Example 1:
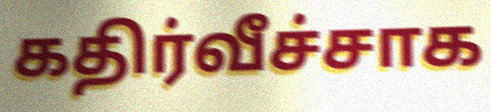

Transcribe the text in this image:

கதிர்வீச்சாக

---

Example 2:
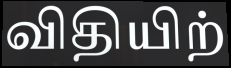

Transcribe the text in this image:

விதியிற்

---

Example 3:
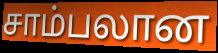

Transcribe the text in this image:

சாம்பலான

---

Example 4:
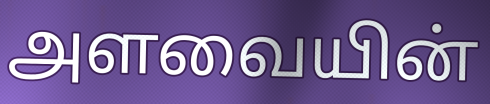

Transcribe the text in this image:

அளவையின்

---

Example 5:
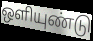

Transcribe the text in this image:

ஒளியுண்டு